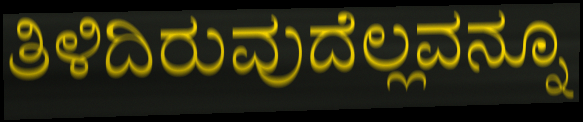
ತಿಳಿದಿರುವುದೆಲ್ಲವನ್ನೂ